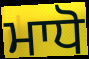
ਮਾਧੋ